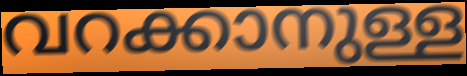
വറക്കാനുള്ള